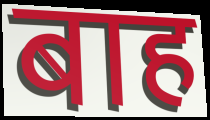
बाह